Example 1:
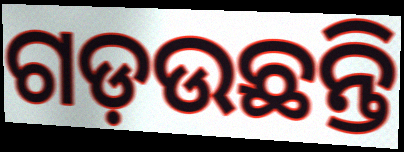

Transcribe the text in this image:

ଗଡ଼ଉଛନ୍ତି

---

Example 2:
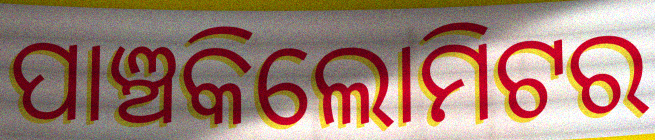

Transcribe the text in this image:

ପାଞ୍ଚକିଲୋମିଟର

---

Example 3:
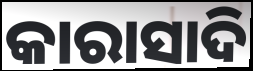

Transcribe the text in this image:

କାରାସାଦି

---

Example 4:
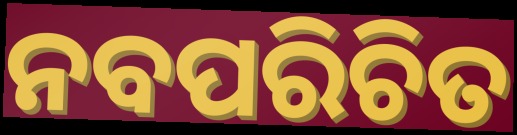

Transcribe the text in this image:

ନବପରିଚିତ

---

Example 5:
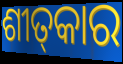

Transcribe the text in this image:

ଶୀତ୍‌କାର